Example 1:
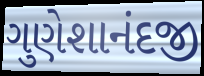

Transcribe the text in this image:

ગુણેશાનંદજી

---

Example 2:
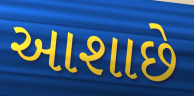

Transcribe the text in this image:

આશાછે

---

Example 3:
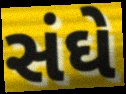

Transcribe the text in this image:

સંઘે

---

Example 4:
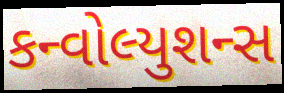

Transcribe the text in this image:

કન્વોલ્યુશન્સ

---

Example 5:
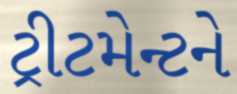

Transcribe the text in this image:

ટ્રીટમેન્ટને